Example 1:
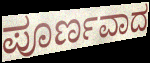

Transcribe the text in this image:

ಪೂರ್ಣವಾದ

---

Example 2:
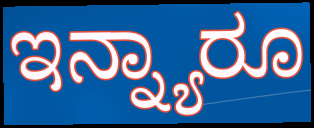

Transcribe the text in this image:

ಇನ್ನ್ಯಾರೂ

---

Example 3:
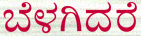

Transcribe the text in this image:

ಬೆಳಗಿದರೆ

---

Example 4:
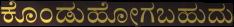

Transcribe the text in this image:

ಕೊಂಡುಹೋಗಬಹುದು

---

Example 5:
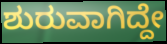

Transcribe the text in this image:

ಶುರುವಾಗಿದ್ದೇ